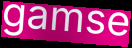
gamse